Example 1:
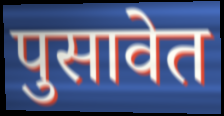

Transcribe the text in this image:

पुसावेत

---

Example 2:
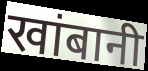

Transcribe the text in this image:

खांबानी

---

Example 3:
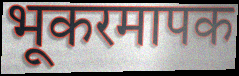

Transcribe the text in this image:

भूकरमापक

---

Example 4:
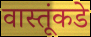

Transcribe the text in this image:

वास्तूंकडे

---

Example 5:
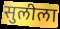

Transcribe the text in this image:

सुलीला